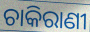
ଚାକିରାଣୀ